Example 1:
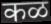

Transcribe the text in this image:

कळ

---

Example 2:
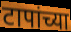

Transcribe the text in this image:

टापांच्या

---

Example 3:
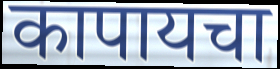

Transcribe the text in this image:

कापायचा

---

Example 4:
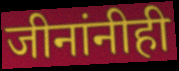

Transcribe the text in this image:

जीनांनीही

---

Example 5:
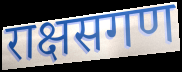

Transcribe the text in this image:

राक्षसगण